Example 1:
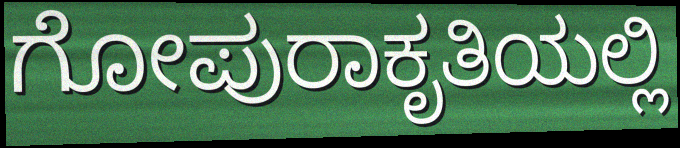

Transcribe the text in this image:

ಗೋಪುರಾಕೃತಿಯಲ್ಲಿ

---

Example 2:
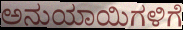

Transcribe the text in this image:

ಅನುಯಾಯಿಗಳಿಗೆ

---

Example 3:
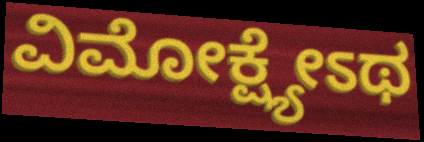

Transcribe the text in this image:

ವಿಮೋಕ್ಷ್ಯೇಽಥ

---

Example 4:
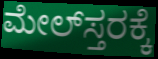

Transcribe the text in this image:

ಮೇಲ್‌ಸ್ತರಕ್ಕೆ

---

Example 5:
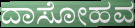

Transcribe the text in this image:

ದಾಸೋಹವ